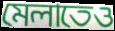
মেলাতেও